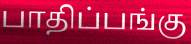
பாதிப்பங்கு